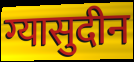
ग्यासुदीन